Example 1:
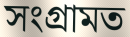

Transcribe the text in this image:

সংগ্ৰামত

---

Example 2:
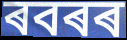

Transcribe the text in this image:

ৰবৰৰ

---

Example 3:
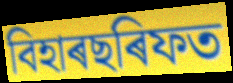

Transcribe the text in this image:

বিহাৰছৰিফত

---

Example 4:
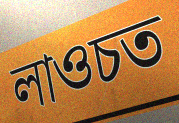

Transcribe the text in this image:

লাওচত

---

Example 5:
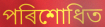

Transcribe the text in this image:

পৰিশোধিত